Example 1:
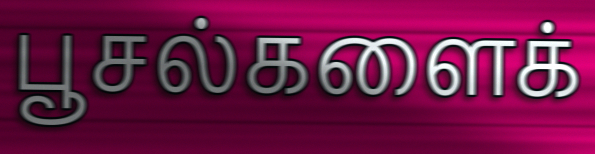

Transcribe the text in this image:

பூசல்களைக்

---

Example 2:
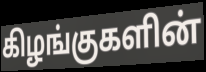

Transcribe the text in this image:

கிழங்குகளின்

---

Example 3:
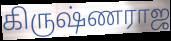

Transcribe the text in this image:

கிருஷ்ணராஜ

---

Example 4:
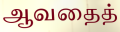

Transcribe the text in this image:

ஆவதைத்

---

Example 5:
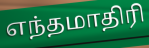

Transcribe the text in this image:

எந்தமாதிரி